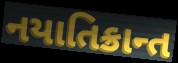
નયાતિક્રાન્ત